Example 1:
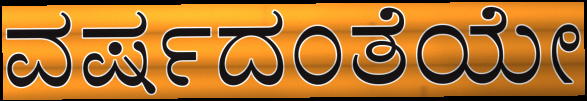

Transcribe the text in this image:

ವರ್ಷದಂತೆಯೇ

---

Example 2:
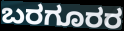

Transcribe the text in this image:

ಬರಗೂರರ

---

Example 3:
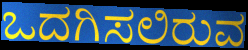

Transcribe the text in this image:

ಒದಗಿಸಲಿರುವ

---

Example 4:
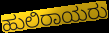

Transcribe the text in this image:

ಹುಲಿರಾಯರು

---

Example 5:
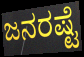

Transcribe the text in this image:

ಜನರಷ್ಟೆ